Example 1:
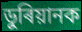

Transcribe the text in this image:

ডুৰিয়ানক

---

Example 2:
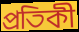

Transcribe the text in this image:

প্ৰতিকী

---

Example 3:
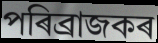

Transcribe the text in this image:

পৰিব্ৰাজকৰ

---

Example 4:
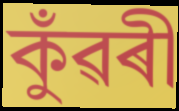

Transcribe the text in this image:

কুঁৱৰী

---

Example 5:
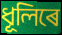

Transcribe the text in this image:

ধূলিৰে